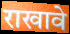
राखावे